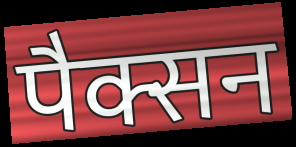
पैक्सन